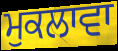
ਮੁਕਲਾਵਾ